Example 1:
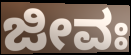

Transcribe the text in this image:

ಜೀವಃ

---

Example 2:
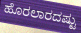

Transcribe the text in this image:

ಹೊರಲಾರದಷ್ಟು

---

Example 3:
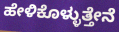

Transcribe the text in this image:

ಹೇಳಿಕೊಳ್ಳುತ್ತೇನೆ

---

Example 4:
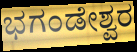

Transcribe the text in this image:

ಭಗಂಡೇಶ್ವರ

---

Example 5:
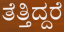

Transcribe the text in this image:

ತೆತ್ತಿದ್ದರೆ